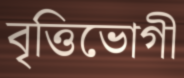
বৃত্তিভোগী